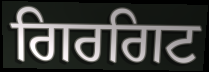
ਗਿਰਗਿਟ